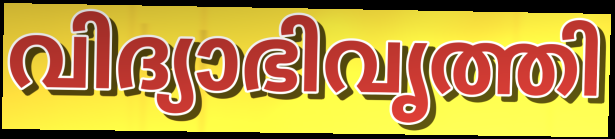
വിദ്യാഭിവൃത്തി